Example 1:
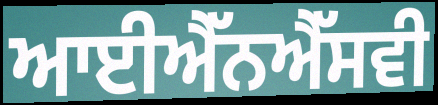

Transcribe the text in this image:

ਆਈਐੱਨਐੱਸਵੀ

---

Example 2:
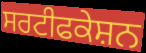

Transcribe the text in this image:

ਸਰਟੀਫਕੇਸ਼ਨ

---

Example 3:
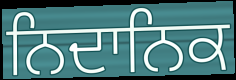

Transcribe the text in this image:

ਨਿਦਾਨਿਕ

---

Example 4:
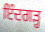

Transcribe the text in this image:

ਇੰਦਗੜ੍ਹ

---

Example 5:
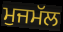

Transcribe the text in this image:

ਮੁਜਮੱਲ